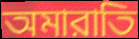
অমারাতি